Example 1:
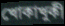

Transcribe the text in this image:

খোকাখুকী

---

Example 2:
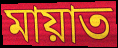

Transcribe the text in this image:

মায়াত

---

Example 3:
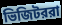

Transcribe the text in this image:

ভিজিটররা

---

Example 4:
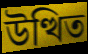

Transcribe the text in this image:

উত্থিত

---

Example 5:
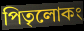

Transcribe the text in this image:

পিতৃলোকং